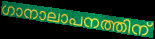
ഗാനാലാപനത്തിന്